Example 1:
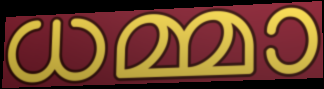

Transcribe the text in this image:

ധമ്മാ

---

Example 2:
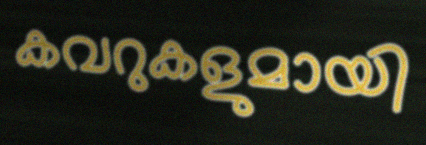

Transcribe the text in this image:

കവറുകളുമായി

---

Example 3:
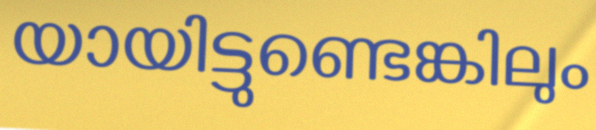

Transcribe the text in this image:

യായിട്ടുണ്ടെങ്കിലും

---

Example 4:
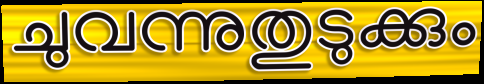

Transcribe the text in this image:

ചുവന്നുതുടുക്കും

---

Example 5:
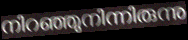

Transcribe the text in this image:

നിറഞ്ഞുനിന്നിരുന്നു